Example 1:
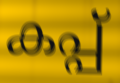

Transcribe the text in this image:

കപ്പ്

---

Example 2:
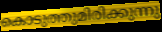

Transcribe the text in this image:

കൊടുത്തുമിരിക്കുന്നു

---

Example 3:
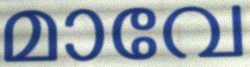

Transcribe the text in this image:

മാവേ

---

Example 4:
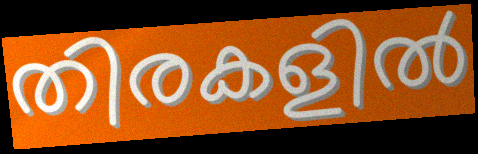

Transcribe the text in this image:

തിരകളിൽ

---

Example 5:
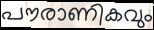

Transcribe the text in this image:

പൗരാണികവും